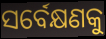
ସର୍ବେକ୍ଷଣକୁ